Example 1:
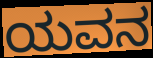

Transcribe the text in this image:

ಯವನ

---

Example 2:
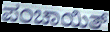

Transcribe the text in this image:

ಪಂಚಾಯಿತ್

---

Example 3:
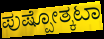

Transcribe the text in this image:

ಪುಷ್ಪೋತ್ಕಟಾ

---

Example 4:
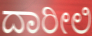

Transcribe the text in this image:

ದಾರೀಲಿ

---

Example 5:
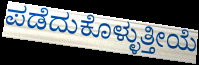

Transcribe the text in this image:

ಪಡೆದುಕೊಳ್ಳುತ್ತೀಯೆ